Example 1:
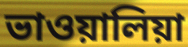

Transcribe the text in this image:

ভাওয়ালিয়া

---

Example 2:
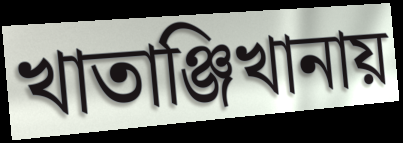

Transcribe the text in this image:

খাতাঞ্জিখানায়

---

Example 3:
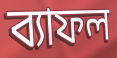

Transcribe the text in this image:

ব্যাফল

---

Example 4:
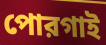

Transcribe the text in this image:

পোরগাই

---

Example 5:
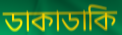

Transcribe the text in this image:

ডাকাডাকি